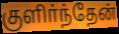
குளிர்ந்தேன்